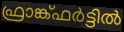
ഫ്രാങ്ക്ഫർട്ടിൽ